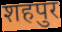
शहपुर